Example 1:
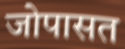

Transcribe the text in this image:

जोपासत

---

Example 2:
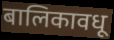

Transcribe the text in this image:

बालिकावधू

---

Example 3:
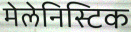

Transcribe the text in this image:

मेलेनिस्टिक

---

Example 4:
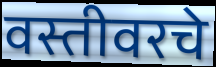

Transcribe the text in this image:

वस्तीवरचे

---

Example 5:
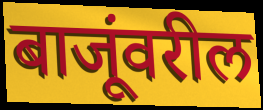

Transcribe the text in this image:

बाजूंवरील